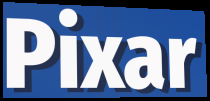
Pixar